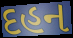
દહન